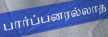
பார்ப்பனரல்லாத